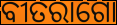
ବୀତରାଗୋ